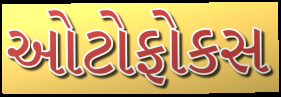
ઓટોફોકસ